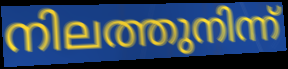
നിലത്തുനിന്ന്